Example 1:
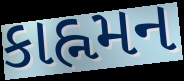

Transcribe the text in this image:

કાહ્નમન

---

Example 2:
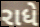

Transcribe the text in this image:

રાધે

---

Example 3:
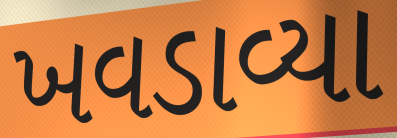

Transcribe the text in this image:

ખવડાવ્યા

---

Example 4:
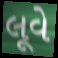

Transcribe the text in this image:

લૂવે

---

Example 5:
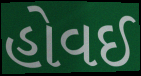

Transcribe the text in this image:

હોવઈ